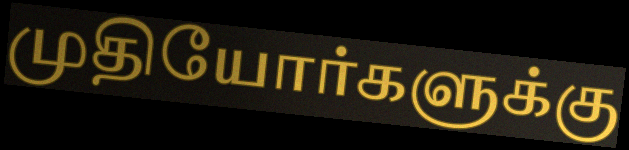
முதியோர்களுக்கு